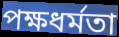
পক্ষধর্মতা